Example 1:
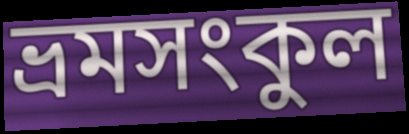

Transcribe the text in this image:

ভ্রমসংকুল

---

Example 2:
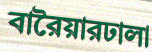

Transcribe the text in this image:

বারৈয়ারঢালা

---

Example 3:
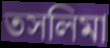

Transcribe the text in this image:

তসলিমা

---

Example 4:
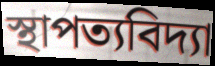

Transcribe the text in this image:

স্থাপত্যবিদ্যা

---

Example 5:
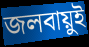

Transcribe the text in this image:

জলবায়ুই